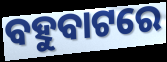
ବହୁବାଟରେ